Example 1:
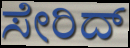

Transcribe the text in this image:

ಸೇರಿದ್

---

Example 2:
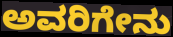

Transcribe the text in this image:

ಅವರಿಗೇನು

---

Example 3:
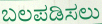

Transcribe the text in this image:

ಬಲಪಡಿಸಲು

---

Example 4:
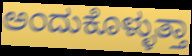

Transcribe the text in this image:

ಅಂದುಕೊಳ್ಳುತ್ತಾ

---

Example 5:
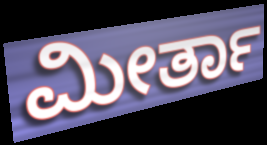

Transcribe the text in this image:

ಮೀರ್ತಾ